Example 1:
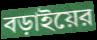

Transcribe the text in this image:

বড়াইয়ের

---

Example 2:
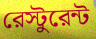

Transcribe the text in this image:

রেস্টুরেন্ট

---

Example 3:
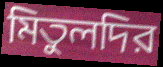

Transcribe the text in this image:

মিতুলদির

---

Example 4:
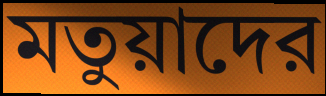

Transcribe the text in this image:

মতুয়াদের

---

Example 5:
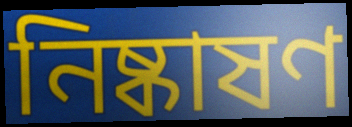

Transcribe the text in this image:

নিষ্কাষণ